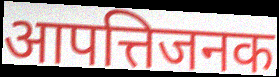
आपत्तिजनक